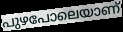
പുഴപോലെയാണ്